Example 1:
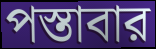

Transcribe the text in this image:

পস্তাবার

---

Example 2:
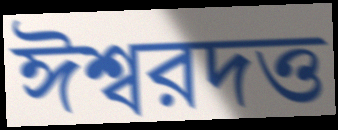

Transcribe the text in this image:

ঈশ্বরদত্ত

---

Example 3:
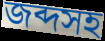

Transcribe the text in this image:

জব্দসহ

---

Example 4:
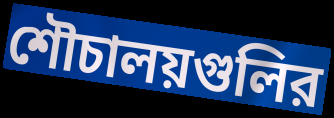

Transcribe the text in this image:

শৌচালয়গুলির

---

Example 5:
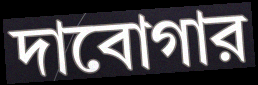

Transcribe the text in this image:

দাবোগার